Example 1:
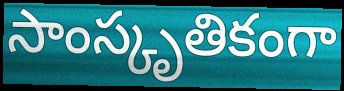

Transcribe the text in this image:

సాంస్కృతికంగా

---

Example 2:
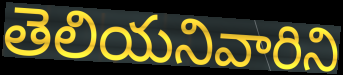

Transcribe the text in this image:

తెలియనివారిని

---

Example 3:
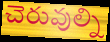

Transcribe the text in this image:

చెరువుల్ని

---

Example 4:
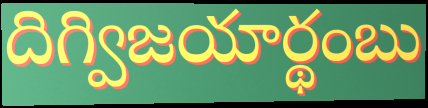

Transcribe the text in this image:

దిగ్విజయార్థంబు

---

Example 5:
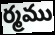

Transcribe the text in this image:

ర్మము